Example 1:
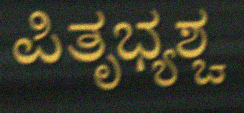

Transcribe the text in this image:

ಪಿತೃಭ್ಯಶ್ಚ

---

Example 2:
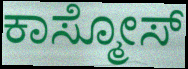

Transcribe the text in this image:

ಕಾಸ್ಮೋಸ್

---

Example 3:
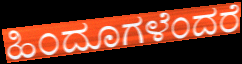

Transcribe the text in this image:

ಹಿಂದೂಗಳೆಂದರೆ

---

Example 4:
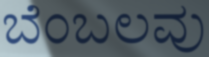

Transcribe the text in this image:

ಬೆಂಬಲವು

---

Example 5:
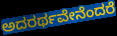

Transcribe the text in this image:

ಅದರರ್ಥವೇನೆಂದರೆ